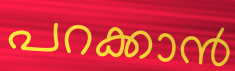
പറക്കാൻ